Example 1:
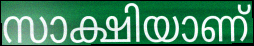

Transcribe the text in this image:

സാക്ഷിയാണ്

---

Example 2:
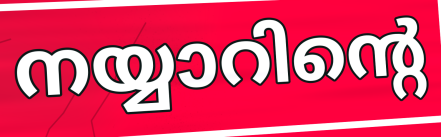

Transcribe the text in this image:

നയ്യാറിന്റെ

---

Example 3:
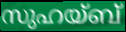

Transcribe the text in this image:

സുഹയ്ബ്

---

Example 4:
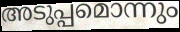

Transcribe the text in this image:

അടുപ്പമൊന്നും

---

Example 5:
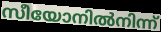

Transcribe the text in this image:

സീയോനിൽനിന്ന്